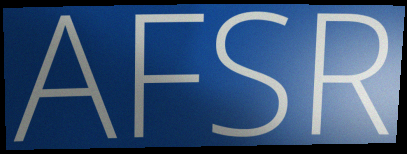
AFSR